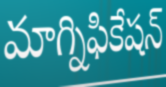
మాగ్నిఫికేషన్